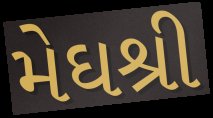
મેઘશ્રી